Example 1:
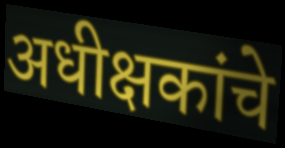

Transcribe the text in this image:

अधीक्षकांचे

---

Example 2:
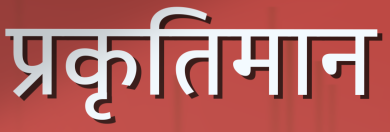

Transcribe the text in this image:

प्रकृतिमान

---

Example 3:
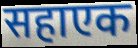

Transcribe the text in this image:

सहाएक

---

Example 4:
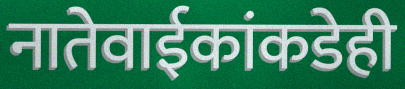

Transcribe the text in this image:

नातेवाईकांकडेही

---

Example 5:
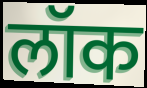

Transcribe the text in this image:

लॉक